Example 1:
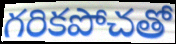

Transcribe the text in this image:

గరికపోచతో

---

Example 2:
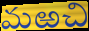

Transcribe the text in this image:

మఱచి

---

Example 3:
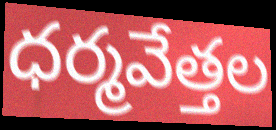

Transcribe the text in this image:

ధర్మవేత్తల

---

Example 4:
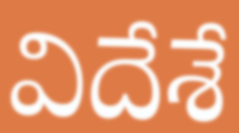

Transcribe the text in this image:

విదేశే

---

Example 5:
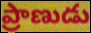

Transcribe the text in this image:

ప్రాణుడు